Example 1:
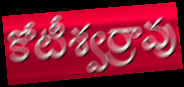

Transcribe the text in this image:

కోటీశ్వర్రావు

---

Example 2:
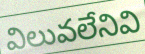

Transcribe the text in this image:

విలువలేనివి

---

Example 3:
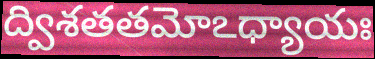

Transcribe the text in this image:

ద్విశతతమోఽధ్యాయః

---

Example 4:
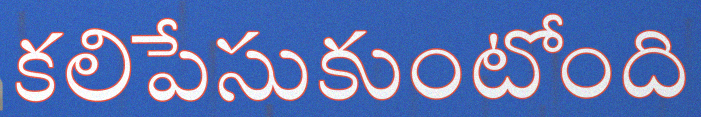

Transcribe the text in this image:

కలిపేసుకుంటోంది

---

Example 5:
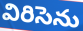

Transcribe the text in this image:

విరిసెను